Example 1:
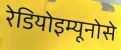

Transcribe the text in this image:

रेडियोइम्यूनोसे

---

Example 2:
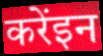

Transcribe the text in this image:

करेंइन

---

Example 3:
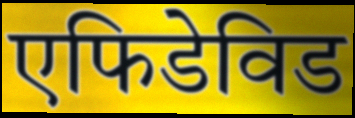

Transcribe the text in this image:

एफिडेविड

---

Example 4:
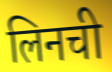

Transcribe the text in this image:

लिनची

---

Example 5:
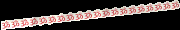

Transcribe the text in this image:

ॐॐॐॐॐॐॐॐॐॐॐॐॐॐॐॐॐॐॐॐ